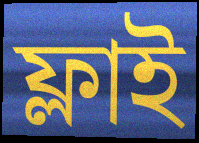
ফ্লাই